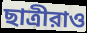
ছাত্রীরাও